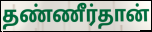
தண்ணீர்தான்